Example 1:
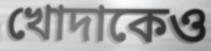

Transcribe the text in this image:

খোদাকেও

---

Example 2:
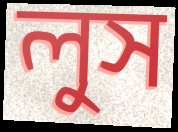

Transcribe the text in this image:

লুস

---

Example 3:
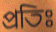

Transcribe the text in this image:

প্রতিঃ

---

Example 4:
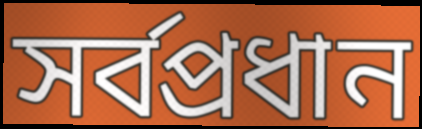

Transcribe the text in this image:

সর্বপ্রধান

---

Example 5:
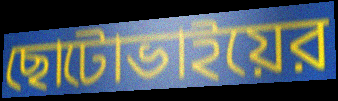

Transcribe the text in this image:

ছোটোভাইয়ের